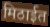
मिठाईत